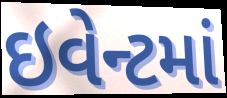
ઇવેન્ટમાં